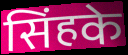
सिंहके